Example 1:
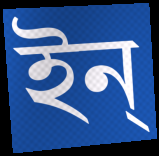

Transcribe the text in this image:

ইন্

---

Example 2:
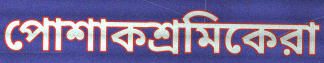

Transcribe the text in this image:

পোশাকশ্রমিকেরা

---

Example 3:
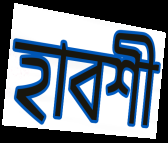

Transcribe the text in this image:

হাবশী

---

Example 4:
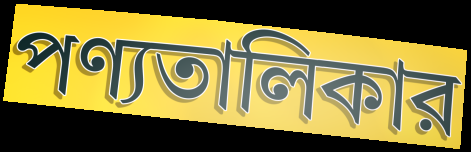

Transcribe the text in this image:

পণ্যতালিকার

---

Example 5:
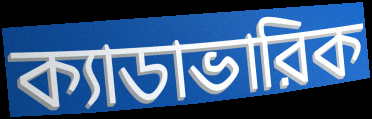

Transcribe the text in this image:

ক্যাডাভারিক